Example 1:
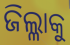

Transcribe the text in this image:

ଜିଲ୍ଳାକୁ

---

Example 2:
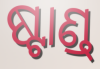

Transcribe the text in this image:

ଷ୍ଟାଣ୍ଡ୍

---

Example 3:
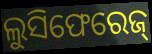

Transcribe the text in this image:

ଲୁସିଫେରେଜ୍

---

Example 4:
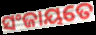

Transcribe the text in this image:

ସଂଜାୟତେ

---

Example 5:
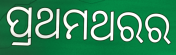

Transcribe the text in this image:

ପ୍ରଥମଥରର